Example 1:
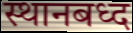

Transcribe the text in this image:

स्थानबध्द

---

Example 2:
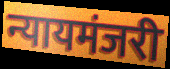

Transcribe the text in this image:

न्यायमंजरी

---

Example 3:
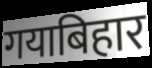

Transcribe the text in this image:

गयाबिहार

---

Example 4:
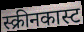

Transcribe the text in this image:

स्क्रीनकास्ट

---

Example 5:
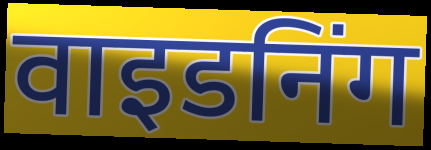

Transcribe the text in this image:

वाइडनिंग